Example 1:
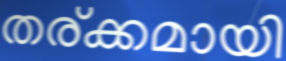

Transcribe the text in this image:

തര്ക്കമായി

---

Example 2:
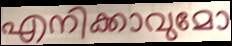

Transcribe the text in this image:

എനിക്കാവുമോ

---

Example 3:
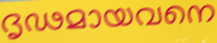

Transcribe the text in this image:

ദൃഢമായവനെ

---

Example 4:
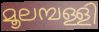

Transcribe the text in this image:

മൂലമ്പള്ളി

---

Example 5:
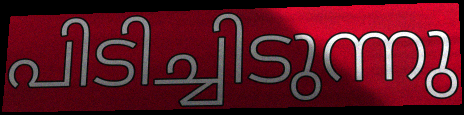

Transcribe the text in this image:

പിടിച്ചിടുന്നു